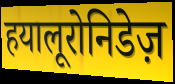
हयालूरोनिडेज़